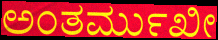
ಅಂತರ್ಮುಖೀ